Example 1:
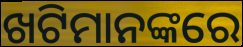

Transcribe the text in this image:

ଖଟିମାନଙ୍କରେ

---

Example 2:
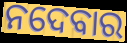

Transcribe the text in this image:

ନଦେବାର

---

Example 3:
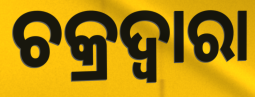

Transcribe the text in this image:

ଚକ୍ରଦ୍ୱାରା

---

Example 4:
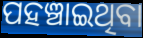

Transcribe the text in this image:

ପହଞ୍ଚାଇଥିବା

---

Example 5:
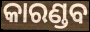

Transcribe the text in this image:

କାରଣ୍ଡବ